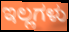
ಇಲ್ಲಗಳು